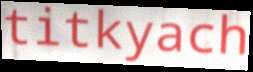
titkyach